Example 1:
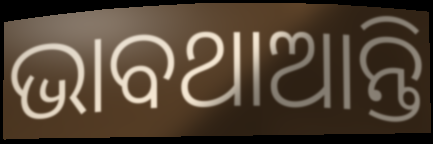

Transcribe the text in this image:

ଭାବଥାଆନ୍ତି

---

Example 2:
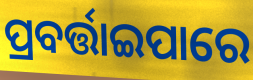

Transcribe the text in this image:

ପ୍ରବର୍ତ୍ତାଇପାରେ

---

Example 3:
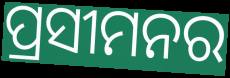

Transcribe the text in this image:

ପ୍ରସୀମନର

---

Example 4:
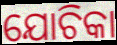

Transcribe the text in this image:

ଯୋଚିକା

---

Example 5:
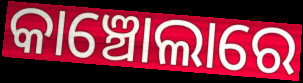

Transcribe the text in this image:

କାଞ୍ଚୋଲାରେ